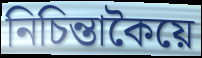
নিচিন্তাকৈয়ে